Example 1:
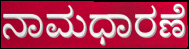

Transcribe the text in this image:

ನಾಮಧಾರಣೆ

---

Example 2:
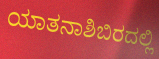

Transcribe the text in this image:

ಯಾತನಾಶಿಬಿರದಲ್ಲಿ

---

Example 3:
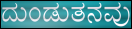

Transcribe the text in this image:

ದುಂಡುತನವು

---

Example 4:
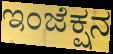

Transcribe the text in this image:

ಇಂಜೆಕ್ಷನ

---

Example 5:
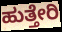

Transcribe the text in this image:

ಹುತ್ತೇರಿ